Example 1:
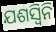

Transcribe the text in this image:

ଯଶସ୍ୱିନି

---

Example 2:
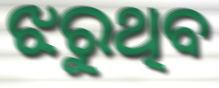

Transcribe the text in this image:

ଝରୁଥିବ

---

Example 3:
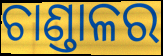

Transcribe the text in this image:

ଚାଣ୍ଡାଳର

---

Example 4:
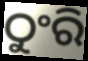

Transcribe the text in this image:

ଠୁଂରି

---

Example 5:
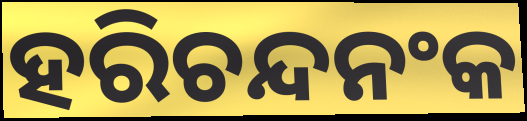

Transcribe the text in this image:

ହରିଚନ୍ଦନଂକ